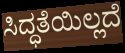
ಸಿದ್ಧತೆಯಿಲ್ಲದೆ